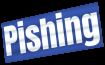
Pishing